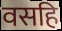
वसहि